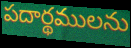
పదార్థములను